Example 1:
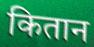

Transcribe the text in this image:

कितान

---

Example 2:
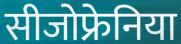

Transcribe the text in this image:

सीजोफ्रेनिया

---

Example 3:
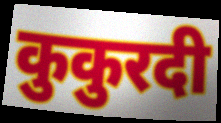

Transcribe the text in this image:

कुकुरदी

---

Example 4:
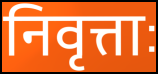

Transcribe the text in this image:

निवृत्ताः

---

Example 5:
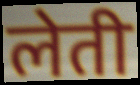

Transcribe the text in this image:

लेती